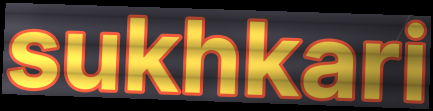
sukhkari